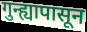
गुन्ह्यापासून